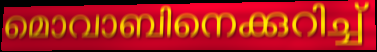
മൊവാബിനെക്കുറിച്ച്